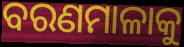
ବରଣମାଳାକୁ